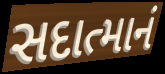
સદાત્માનં